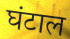
घंटाल